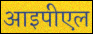
आइपीएल